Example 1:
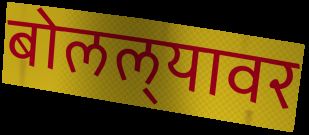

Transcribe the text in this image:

बोलल्यावर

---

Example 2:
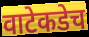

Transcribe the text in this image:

वाटेकडेच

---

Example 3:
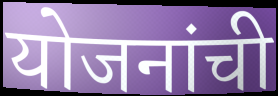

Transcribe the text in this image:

योजनांची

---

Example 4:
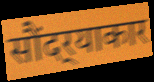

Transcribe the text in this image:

सौंदर्याकार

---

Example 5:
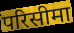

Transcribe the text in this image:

परिसीमा